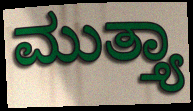
ಮುತ್ತ್ಯಾ